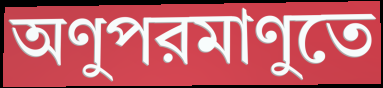
অণুপরমাণুতে